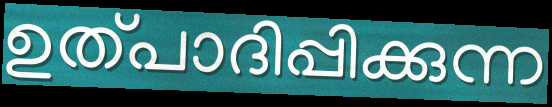
ഉത്പാദിപ്പിക്കുന്ന